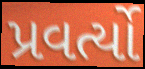
પ્રવર્ત્યો